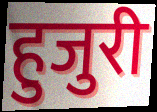
हुजुरी